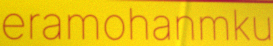
eramohanmku